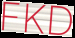
FKD